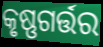
କୃଷ୍ଣଗର୍ତ୍ତର